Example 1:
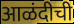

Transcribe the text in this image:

आळंदीची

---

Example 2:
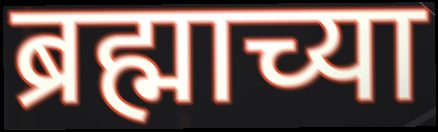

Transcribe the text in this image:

ब्रह्माच्या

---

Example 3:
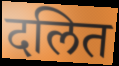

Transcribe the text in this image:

दलित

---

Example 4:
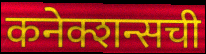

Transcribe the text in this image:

कनेक्शन्सची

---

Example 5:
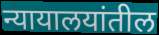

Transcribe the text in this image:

न्यायालयांतील